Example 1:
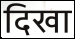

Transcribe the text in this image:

दिखा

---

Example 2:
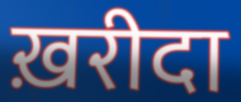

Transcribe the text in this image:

ख़रीदा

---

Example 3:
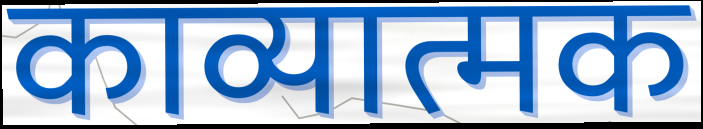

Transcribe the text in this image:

काव्यात्मक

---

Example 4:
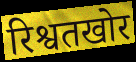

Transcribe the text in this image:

रिश्वतखोर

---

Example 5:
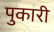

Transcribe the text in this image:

पुकारी